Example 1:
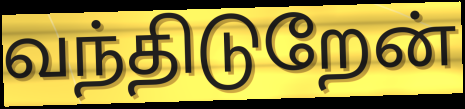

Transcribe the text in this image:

வந்திடுறேன்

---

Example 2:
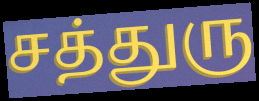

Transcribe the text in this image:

சத்துரு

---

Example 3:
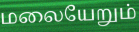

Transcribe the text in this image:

மலையேறும்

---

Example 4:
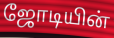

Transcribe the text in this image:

ஜோடியின்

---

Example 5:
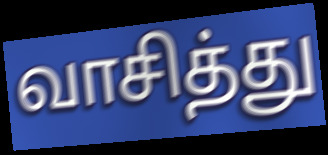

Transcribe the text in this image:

வாசித்து